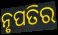
ନୃପତିର